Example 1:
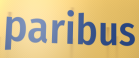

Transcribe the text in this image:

paribus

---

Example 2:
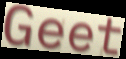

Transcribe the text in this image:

Geet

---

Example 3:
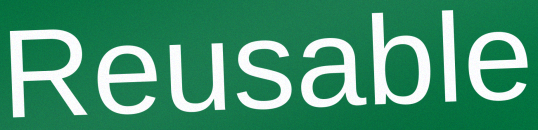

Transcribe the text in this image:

Reusable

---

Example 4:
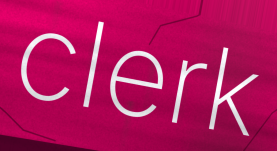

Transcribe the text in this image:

clerk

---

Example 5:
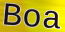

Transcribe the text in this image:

Boa